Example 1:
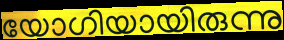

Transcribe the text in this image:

യോഗിയായിരുന്നു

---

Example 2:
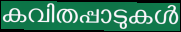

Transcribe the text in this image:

കവിതപ്പാടുകൾ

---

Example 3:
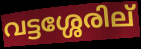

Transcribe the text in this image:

വട്ടശ്ശേരില്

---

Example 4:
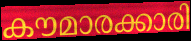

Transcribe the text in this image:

കൗമാരക്കാരി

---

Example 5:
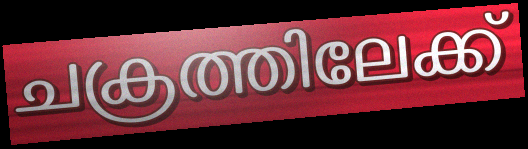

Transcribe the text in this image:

ചക്രത്തിലേക്ക്